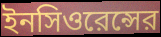
ইনসিওরেন্সের